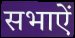
सभाऐं